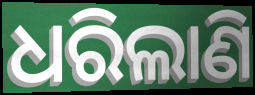
ଧରିଲାଣି